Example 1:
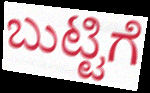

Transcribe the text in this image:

ಬುಟ್ಟಿಗೆ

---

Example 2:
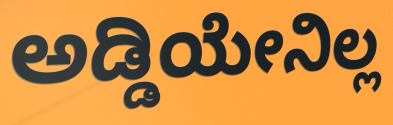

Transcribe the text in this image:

ಅಡ್ಡಿಯೇನಿಲ್ಲ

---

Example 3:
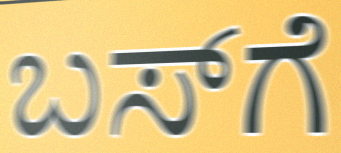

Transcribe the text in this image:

ಬಸ್‍ಗೆ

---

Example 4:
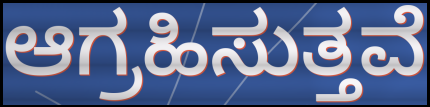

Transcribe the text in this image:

ಆಗ್ರಹಿಸುತ್ತವೆ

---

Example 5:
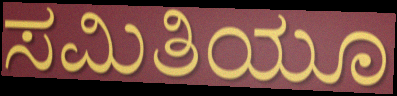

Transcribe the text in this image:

ಸಮಿತಿಯೂ